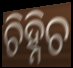
ଚିହ୍ନିଚ